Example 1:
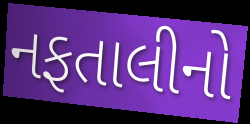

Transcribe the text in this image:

નફતાલીનો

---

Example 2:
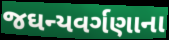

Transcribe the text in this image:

જઘન્યવર્ગણાના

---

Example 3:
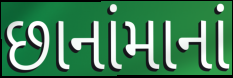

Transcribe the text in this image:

છાનાંમાનાં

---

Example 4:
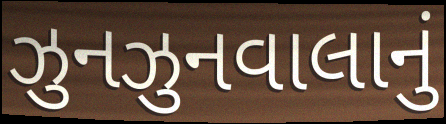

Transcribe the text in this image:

ઝુનઝુનવાલાનું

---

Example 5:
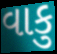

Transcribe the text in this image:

વાકુ